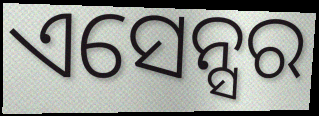
ଏସେନ୍ସର